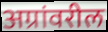
अग्रांवरील